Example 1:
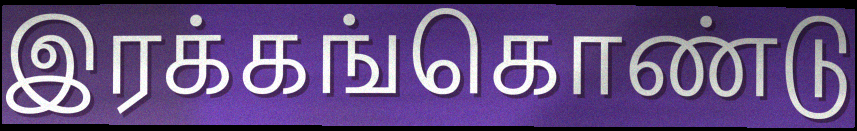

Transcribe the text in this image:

இரக்கங்கொண்டு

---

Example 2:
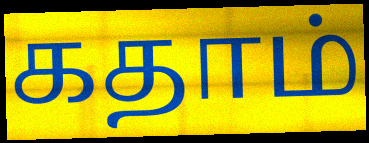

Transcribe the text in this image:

கதாம்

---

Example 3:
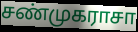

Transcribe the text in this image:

சண்முகராசா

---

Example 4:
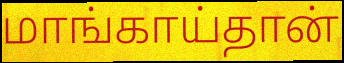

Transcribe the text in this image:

மாங்காய்தான்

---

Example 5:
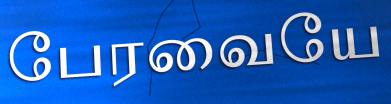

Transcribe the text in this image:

பேரவையே